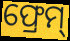
ଫ୍ରେମ୍